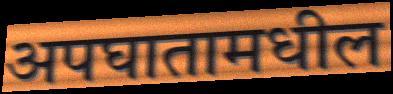
अपघातामधील